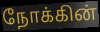
நோக்கின்